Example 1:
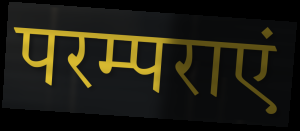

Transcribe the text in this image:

परम्पराएं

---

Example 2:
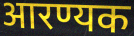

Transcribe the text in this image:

आरण्यक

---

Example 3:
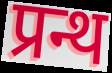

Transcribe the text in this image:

प्रन्थ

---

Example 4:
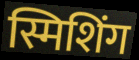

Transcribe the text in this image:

स्मिशिंग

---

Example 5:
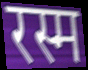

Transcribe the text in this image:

रस्म